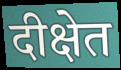
दीक्षेत